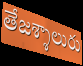
తేజశ్శాలురు